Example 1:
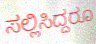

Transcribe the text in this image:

ಸಲ್ಲಿಸಿದ್ದರೂ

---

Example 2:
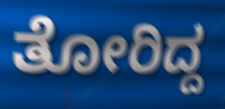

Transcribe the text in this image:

ತೋರಿದ್ದ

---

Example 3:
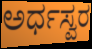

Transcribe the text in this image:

ಅರ್ಧಸ್ವರ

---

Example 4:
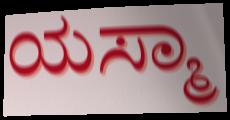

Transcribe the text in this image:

ಯಸ್ಮಾ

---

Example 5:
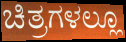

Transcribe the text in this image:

ಚಿತ್ರಗಳಲ್ಲೂ